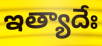
ఇత్యాదేః